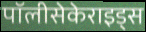
पॉलीसेकेराइड्स